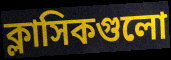
ক্লাসিকগুলো